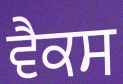
ਵੈਕਸ